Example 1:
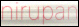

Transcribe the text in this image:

nirupan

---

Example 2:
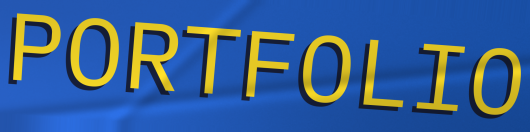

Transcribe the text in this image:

PORTFOLIO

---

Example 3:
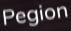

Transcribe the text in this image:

Pegion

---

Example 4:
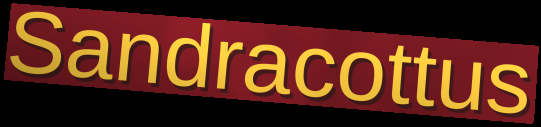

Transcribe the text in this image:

Sandracottus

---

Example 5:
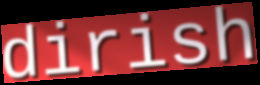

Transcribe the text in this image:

dirish